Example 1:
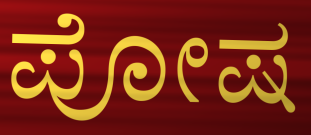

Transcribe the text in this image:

ಪೋಷ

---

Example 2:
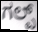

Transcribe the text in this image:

ಗಲ್ಪ್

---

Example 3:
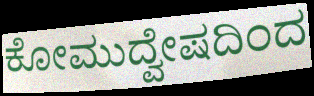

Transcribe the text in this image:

ಕೋಮುದ್ವೇಷದಿಂದ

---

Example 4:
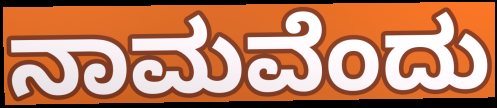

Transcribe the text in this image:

ನಾಮವೆಂದು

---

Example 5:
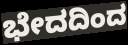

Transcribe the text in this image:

ಭೇದದಿಂದ